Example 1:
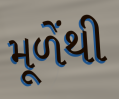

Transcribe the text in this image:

મૂળેંથી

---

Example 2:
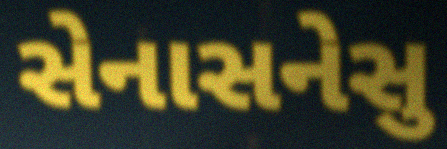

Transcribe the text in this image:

સેનાસનેસુ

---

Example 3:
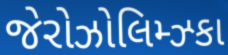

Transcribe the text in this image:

જેરોઝોલિમ્ઝ્કા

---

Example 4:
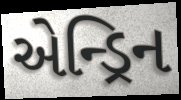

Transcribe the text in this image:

એન્ડ્રિન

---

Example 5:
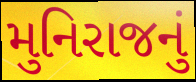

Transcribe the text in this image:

મુનિરાજનું